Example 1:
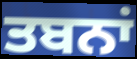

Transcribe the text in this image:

ਤਬਨਾਂ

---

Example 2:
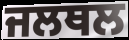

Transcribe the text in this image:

ਜਲਥਲ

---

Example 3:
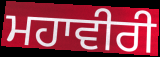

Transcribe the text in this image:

ਮਹਾਵੀਰੀ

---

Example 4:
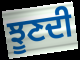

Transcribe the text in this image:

ਝੂਣਦੀ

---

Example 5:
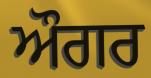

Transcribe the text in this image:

ਔਗਰ